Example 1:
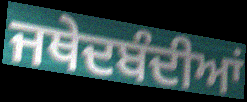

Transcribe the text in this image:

ਜਥੇਦਬੰਦੀਆਂ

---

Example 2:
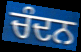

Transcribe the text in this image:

ਚੰਦਨ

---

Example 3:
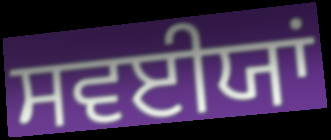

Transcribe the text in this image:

ਸਵਈਯਾਂ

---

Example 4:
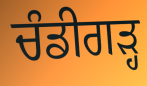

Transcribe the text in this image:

ਚੰਡੀਗਡ਼੍ਹ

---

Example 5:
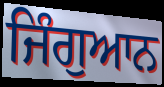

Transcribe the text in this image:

ਜਿੰਗੁਆਨ